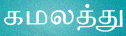
கமலத்து